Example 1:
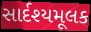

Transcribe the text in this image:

સાર્દશ્યમૂલક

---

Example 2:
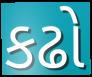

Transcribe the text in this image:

કઢો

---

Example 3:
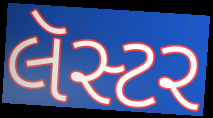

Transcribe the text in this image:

લૅસ્ટર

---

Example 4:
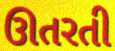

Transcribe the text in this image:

ઊતરતી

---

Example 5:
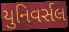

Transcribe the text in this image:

યુનિવર્સલ